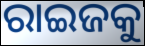
ରାଇଜକୁ